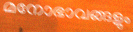
മനോഭാവങ്ങളും